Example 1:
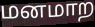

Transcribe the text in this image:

மனமாற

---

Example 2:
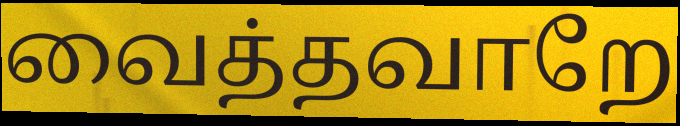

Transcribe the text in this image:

வைத்தவாறே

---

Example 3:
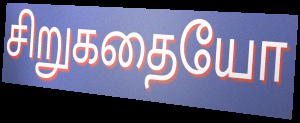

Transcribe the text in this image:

சிறுகதையோ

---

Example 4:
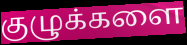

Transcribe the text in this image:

குழுக்களை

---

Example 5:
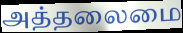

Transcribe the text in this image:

அத்தலைமை